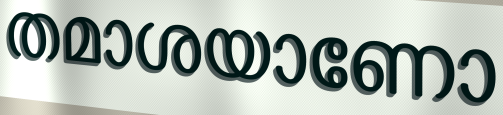
തമാശയാണോ